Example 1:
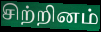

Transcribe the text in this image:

சிற்றினம்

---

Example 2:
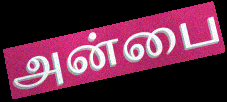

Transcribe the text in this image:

அன்பை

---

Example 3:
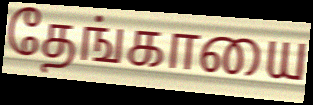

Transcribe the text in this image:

தேங்காயை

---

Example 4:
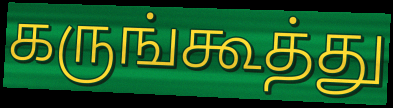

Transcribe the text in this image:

கருங்கூத்து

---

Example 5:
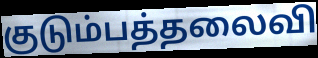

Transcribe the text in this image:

குடும்பத்தலைவி